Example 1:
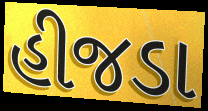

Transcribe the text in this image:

હીજડા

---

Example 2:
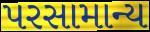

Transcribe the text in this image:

પરસામાન્ય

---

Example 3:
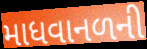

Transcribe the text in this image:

માધવાનળની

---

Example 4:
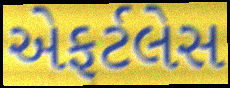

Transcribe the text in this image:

એફર્ટલેસ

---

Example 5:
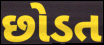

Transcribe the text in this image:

છોડત